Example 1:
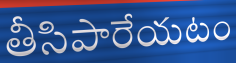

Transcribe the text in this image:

తీసిపారేయటం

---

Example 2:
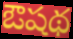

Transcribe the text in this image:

ఔషథ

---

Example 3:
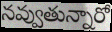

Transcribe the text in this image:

నవ్వుతున్నారో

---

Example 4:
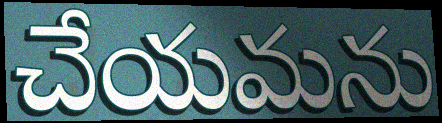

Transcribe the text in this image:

చేయమను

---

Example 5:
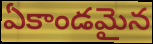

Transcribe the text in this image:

ఏకాండమైన